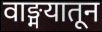
वाङ्मयातून